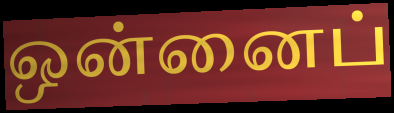
ஒன்னைப்